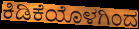
ಕಿಡಿಕೆಯೊಳಗಿಂದ